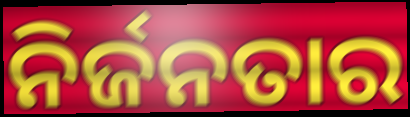
ନିର୍ଜନତାର